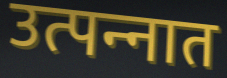
उत्पन्नात